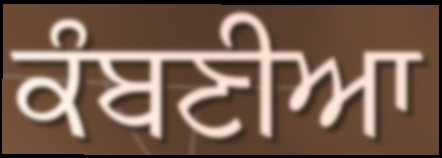
ਕੰਬਣੀਆ